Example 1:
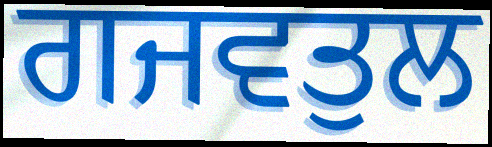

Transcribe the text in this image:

ਗਜਵਤੁਲ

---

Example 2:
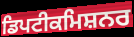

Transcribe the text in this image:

ਡਿਪਟੀਕਮਿਸ਼ਨਰ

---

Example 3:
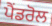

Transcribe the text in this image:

ਪੈਂਡਰੋਲ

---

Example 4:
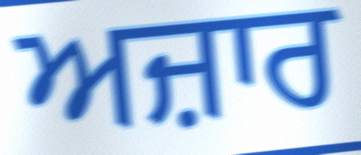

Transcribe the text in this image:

ਅਜ਼ਾਰ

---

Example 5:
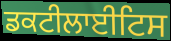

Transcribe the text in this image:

ਡਕਟੀਲਾਈਟਿਸ